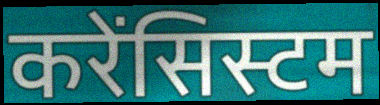
करेंसिस्टम